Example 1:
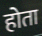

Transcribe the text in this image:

होता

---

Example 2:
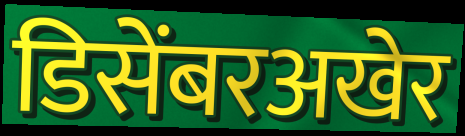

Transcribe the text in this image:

डिसेंबरअखेर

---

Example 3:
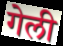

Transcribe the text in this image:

गेली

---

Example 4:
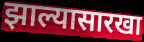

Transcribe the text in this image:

झाल्यासारखा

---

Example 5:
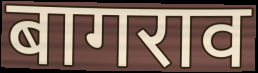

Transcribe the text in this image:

बागराव